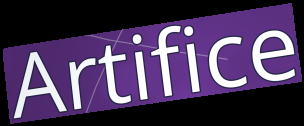
Artifice